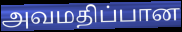
அவமதிப்பான